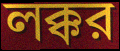
লক্কর